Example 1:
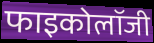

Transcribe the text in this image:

फाइकोलॉजी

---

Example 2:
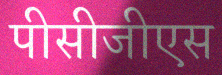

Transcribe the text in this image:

पीसीजीएस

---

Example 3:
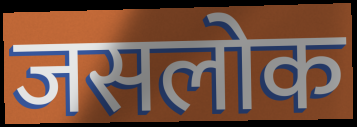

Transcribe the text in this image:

जसलोक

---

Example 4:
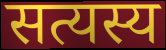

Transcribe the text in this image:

सत्यस्य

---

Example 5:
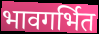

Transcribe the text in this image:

भावगर्भित